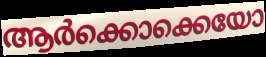
ആർക്കൊക്കെയോ